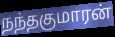
நந்தகுமாரன்